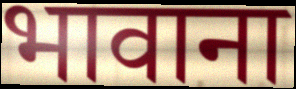
भावाना